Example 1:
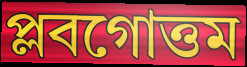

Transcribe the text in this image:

প্লবগোত্তম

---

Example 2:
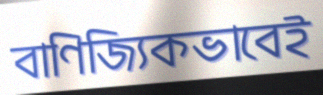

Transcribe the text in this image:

বাণিজ্যিকভাবেই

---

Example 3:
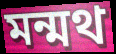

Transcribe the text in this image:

মন্মথ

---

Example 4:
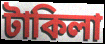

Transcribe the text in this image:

টাকিলা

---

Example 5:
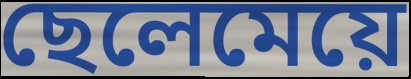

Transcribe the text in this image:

ছেলেমেয়ে